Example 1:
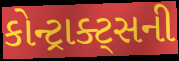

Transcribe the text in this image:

કોન્ટ્રાક્ટ્સની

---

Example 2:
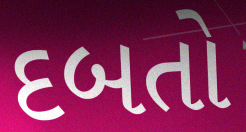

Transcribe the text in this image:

દબતો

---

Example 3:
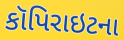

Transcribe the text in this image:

કૉપિરાઇટના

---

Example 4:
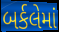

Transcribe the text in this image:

બર્કલેમાં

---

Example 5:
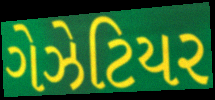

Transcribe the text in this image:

ગેઝેટિયર